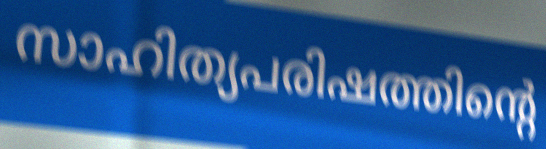
സാഹിത്യപരിഷത്തിന്റെ